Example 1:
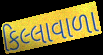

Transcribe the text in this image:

કિલ્લાવાળા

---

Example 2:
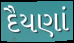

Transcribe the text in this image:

દૈયણાં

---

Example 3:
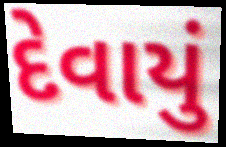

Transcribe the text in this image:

દેવાયું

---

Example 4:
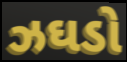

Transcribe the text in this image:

ઝઘડો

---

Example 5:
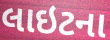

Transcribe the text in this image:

લાઇટના